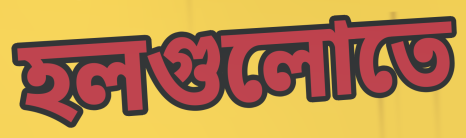
হলগুলোতে